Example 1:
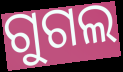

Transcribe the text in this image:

ଗୁଗଲ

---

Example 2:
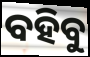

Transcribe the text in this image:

ବହିବୁ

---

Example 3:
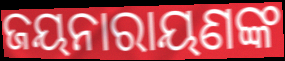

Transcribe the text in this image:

ଜୟନାରାୟଣଙ୍କ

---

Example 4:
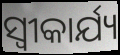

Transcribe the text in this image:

ସ୍ଵୀକାର୍ଯ୍ୟ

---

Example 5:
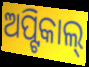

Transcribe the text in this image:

ଅପ୍ଟିକାଲ୍